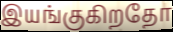
இயங்குகிறதோ